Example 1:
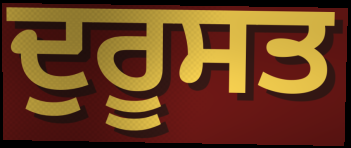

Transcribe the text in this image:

ਦੁਰੂਸਤ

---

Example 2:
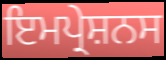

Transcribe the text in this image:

ਇਮਪ੍ਰੇਸ਼ਨਸ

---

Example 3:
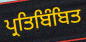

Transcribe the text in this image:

ਪ੍ਰਤਿਬਿੰਬਿਤ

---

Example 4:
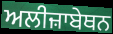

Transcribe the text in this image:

ਅਲੀਜ਼ਾਬੇਥਨ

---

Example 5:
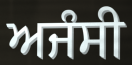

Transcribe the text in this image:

ਅਜੰਸੀ